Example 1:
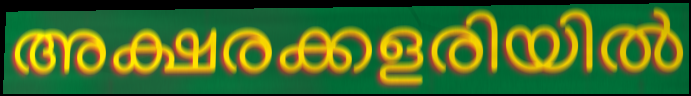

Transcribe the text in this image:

അക്ഷരക്കളരിയിൽ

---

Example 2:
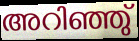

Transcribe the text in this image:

അറിഞ്ഞു്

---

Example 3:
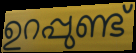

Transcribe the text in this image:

ഉറപ്പുണ്ട്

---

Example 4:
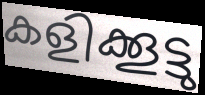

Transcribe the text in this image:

കളിക്കൂട്ടു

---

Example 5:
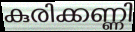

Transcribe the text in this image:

കുരിക്കണ്ണി